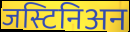
जस्टिनिअन